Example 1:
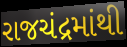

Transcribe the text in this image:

રાજચંદ્રમાંથી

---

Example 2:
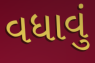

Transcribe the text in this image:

વધાવું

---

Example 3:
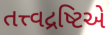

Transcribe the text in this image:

તત્ત્વદ્રષ્ટિએ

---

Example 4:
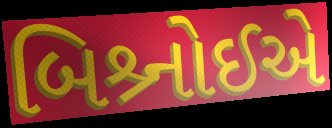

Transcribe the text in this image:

બિશ્ર્નોઈએ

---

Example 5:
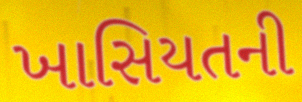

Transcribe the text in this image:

ખાસિયતની